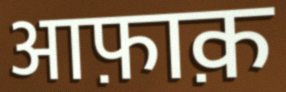
आफ़ाक़